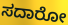
ಸದಾರೋ